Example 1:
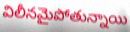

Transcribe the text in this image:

విలీనమైపోతున్నాయి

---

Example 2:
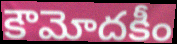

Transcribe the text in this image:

కౌమోదకీం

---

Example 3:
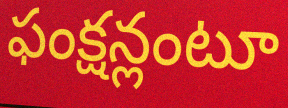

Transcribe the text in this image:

ఫంక్షన్లంటూ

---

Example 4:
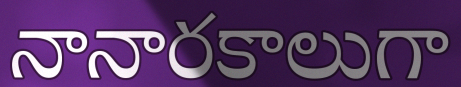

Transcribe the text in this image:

నానారకాలుగా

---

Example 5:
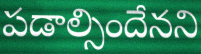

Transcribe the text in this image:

పడాల్సిందేనని